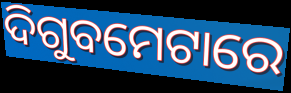
ଦିଗୁବମେଟାରେ